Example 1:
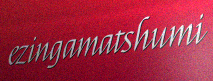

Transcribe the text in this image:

ezingamatshumi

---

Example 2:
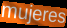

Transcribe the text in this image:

mujeres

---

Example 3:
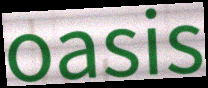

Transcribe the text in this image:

oasis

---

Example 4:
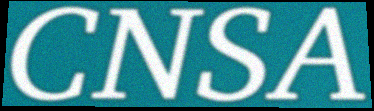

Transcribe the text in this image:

CNSA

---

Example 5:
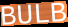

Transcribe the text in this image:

BULB